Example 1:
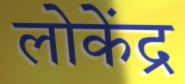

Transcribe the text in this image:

लोकेंद्र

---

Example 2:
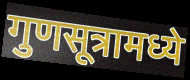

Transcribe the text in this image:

गुणसूत्रामध्ये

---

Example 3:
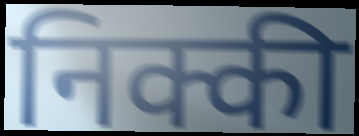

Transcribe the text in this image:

निक्की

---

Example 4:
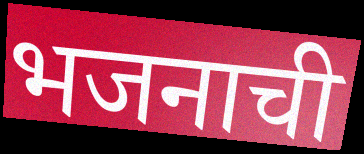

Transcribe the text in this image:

भजनाची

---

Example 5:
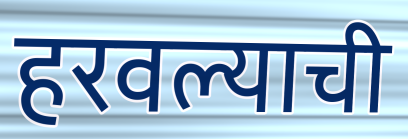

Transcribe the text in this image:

हरवल्याची